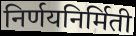
निर्णयनिर्मिती